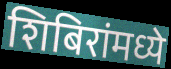
शिबिरांमध्ये